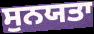
ਸੁਨਯਤਾ